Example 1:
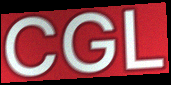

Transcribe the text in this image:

CGL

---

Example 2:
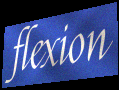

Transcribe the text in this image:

flexion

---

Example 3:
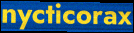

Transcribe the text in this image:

nycticorax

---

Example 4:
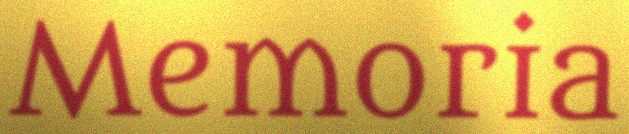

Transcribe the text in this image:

Memoria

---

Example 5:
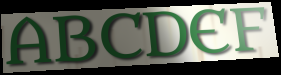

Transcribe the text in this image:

ABCDEF